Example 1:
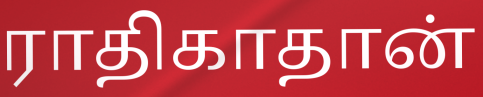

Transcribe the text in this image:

ராதிகாதான்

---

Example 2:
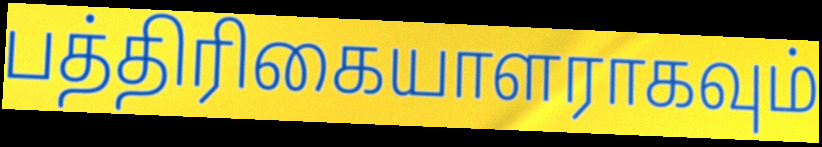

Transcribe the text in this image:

பத்திரிகையாளராகவும்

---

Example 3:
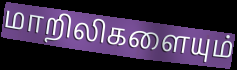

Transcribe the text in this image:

மாறிலிகளையும்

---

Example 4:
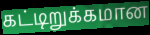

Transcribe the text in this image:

கட்டிறுக்கமான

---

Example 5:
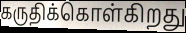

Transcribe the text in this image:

கருதிக்கொள்கிறது